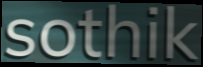
sothik